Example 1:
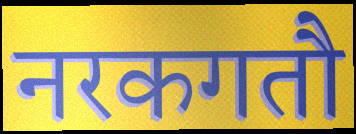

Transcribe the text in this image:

नरकगतौ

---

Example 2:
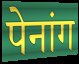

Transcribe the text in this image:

पेनांग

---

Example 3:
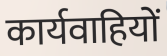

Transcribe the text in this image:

कार्यवाहियों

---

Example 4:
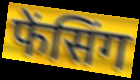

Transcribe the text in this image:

फेंसिंग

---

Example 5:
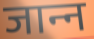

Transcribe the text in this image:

जान्न